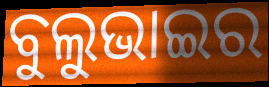
ବୁଲୁଭାଇର